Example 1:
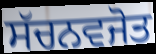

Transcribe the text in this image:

ਸੱਚਨਵਜੋਤ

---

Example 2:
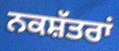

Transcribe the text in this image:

ਨਕਸ਼ੱਤਰਾਂ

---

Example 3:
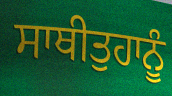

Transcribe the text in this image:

ਸਾਥੀਤੁਹਾਨੂੰ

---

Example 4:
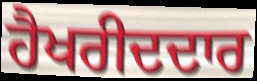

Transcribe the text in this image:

ਹੈਖਰੀਦਦਾਰ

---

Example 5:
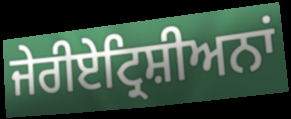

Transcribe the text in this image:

ਜੇਰੀਏਟ੍ਰਿਸ਼ੀਅਨਾਂ